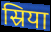
स्रिया